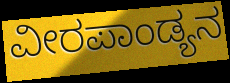
ವೀರಪಾಂಡ್ಯನ